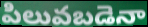
పిలువబడెనా